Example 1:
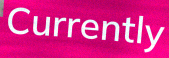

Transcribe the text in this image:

Currently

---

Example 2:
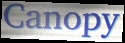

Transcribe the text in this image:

Canopy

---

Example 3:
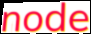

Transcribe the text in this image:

node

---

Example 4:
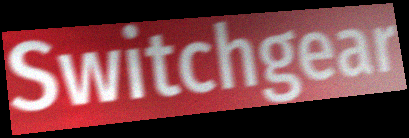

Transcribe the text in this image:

Switchgear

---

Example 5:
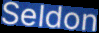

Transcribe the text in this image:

Seldon